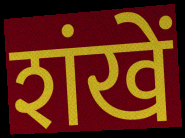
शंखें